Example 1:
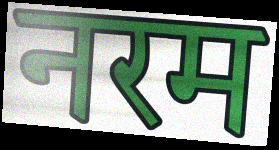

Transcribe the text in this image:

नरम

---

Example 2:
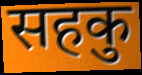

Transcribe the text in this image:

सहकु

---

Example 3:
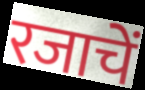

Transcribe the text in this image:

रजाचें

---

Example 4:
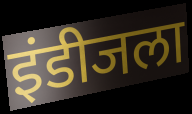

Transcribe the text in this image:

इंडीजला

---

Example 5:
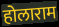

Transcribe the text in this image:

होलाराम